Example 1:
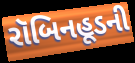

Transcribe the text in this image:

રૉબિનહૂડની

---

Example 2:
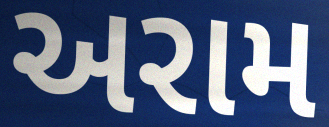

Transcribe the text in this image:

અરામ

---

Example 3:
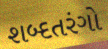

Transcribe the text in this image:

શબ્દતરંગો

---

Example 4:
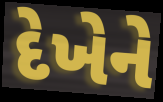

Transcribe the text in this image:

દેખેને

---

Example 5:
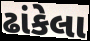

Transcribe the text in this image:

ઢાંકેલા